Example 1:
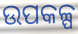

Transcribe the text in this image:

ଉପକଳ୍ପ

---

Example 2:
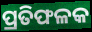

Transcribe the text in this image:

ପ୍ରତିଫଳକ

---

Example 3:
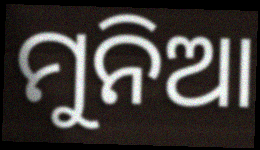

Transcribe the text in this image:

ମୁନିଆ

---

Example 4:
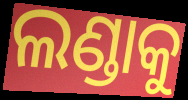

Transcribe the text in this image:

ଲଣ୍ଡାକୁ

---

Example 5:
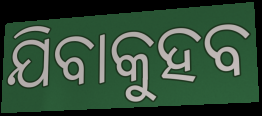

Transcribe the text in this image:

ଯିବାକୁହବ